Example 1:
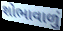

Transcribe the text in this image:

શોભાવાળું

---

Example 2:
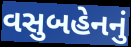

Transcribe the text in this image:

વસુબહેનનું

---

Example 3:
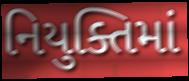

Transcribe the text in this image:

નિયુક્તિમાં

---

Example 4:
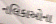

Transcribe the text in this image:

નલિકાઓના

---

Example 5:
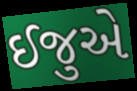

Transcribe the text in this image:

ઈજુએ